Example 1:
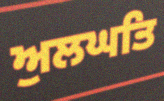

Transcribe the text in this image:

ਅੁਲਘਤਿ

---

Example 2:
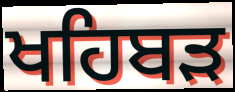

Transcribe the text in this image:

ਖਹਿਬੜ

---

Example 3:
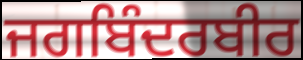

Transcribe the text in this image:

ਜਗਬਿੰਦਰਬੀਰ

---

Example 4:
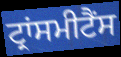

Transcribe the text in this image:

ਟ੍ਰਾਂਸਮੀਟੈਂਸ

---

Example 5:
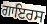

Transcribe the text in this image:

ਗਾਇਰਸ